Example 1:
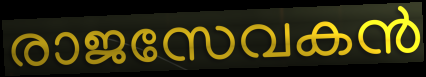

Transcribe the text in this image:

രാജസേവകൻ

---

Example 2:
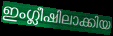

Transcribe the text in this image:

ഇംഗ്ലീഷിലാക്കിയ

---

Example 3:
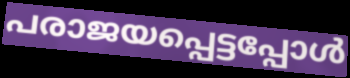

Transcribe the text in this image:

പരാജയപ്പെട്ടപ്പോൾ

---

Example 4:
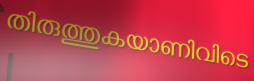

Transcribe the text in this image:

തിരുത്തുകയാണിവിടെ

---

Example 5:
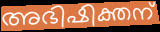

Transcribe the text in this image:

അഭിഷിക്തന്